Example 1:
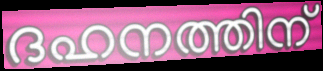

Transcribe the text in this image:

ദഹനത്തിന്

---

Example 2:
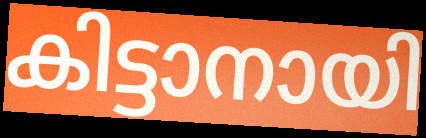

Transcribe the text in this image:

കിട്ടാനായി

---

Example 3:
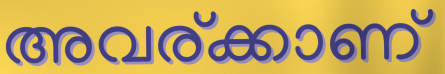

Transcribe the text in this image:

അവര്ക്കാണ്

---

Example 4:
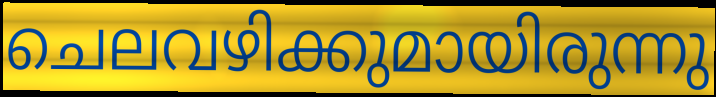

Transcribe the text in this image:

ചെലവഴിക്കുമായിരുന്നു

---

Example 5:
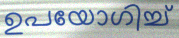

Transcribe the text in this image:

ഉപയോഗിച്ച്